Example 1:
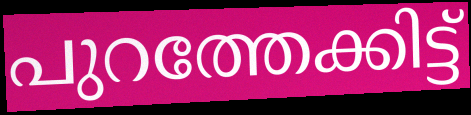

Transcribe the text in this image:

പുറത്തേക്കിട്ട്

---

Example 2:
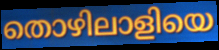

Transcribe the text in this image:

തൊഴിലാളിയെ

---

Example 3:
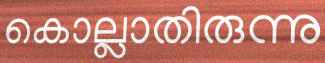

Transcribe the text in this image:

കൊല്ലാതിരുന്നു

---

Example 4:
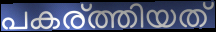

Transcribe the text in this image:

പകര്ത്തിയത്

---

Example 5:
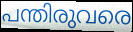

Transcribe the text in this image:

പന്തിരുവരെ